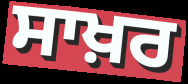
ਸਾਖ਼ਰ